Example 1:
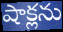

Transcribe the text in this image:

షాక్లను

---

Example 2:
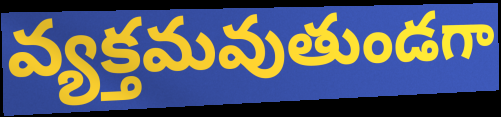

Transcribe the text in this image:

వ్యక్తమవుతుండగా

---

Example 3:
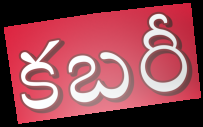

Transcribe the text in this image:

కబరీ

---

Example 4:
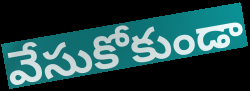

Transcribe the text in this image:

వేసుకోకుండా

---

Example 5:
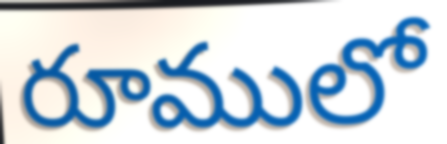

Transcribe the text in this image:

రూములో